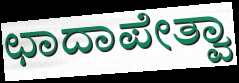
ಛಾದಾಪೇತ್ವಾ